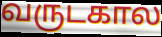
வருடகால